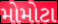
મોમોટા